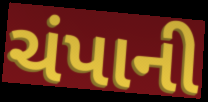
ચંપાની